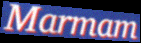
Marmam